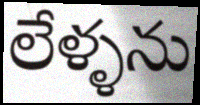
లేళ్ళను